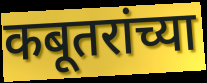
कबूतरांच्या